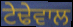
ਟੇਢੇਵਾਲ